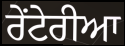
ਰੇਂਟੇਰੀਆ